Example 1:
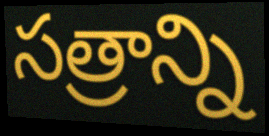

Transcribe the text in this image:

సత్రాన్ని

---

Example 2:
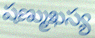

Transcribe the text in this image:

షణ్ముఖస్య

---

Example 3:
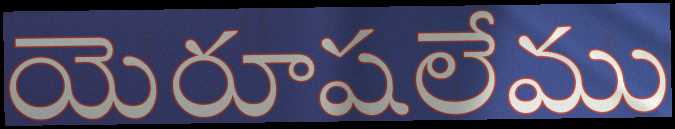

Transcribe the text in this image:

యెరూషలేము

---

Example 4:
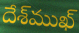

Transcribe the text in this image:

దేశ్‌ముఖ్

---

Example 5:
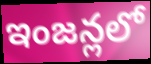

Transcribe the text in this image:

ఇంజన్లలో